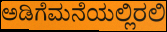
ಅಡಿಗೆಮನೆಯಲ್ಲಿರಲಿ